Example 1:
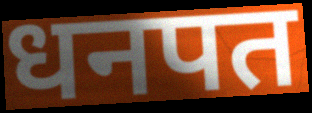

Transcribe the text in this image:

धनपत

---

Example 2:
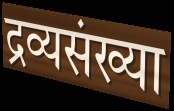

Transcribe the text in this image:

द्रव्यसंख्या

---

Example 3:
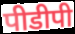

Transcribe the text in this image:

पीडीपी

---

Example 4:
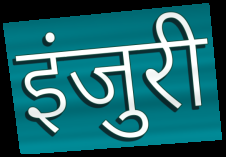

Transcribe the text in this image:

इंजुरी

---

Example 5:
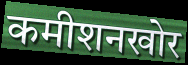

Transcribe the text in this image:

कमीशनखोर